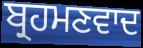
ਬ੍ਰਹਮਣਵਾਦ